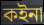
কইনা